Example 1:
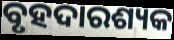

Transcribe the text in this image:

ବୃହଦାରଶ୍ୟକ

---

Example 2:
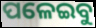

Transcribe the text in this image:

ପଳେଇବୁ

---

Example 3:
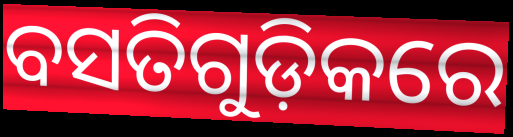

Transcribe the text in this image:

ବସତିଗୁଡ଼ିକରେ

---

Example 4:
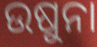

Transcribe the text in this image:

ଉଷୁନା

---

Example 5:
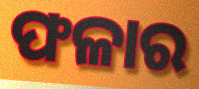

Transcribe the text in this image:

ଫଳାର